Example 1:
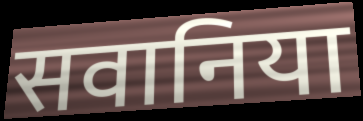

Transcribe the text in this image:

सवानिया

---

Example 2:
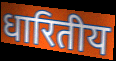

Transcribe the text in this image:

धारितीय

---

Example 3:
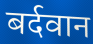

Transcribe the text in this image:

बर्दवान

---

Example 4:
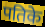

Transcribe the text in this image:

पतिके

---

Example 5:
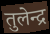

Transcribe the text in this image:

तुलेन्द्र